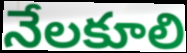
నేలకూలి